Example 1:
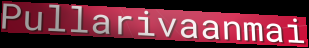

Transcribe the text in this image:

Pullarivaanmai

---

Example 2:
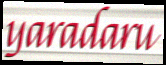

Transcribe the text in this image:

yaradaru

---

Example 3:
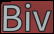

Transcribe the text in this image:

Biv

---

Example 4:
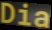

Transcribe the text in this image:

Dia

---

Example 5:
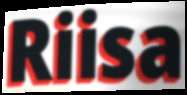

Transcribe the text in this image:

Riisa